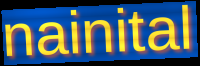
nainital